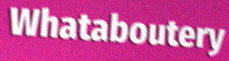
Whataboutery